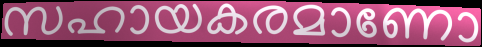
സഹായകരമാണോ